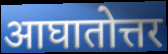
आघातोत्तर